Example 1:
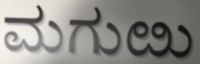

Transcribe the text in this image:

ಮಗುೞು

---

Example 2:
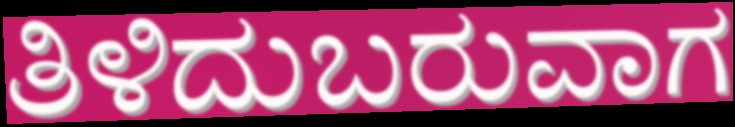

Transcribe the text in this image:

ತಿಳಿದುಬರುವಾಗ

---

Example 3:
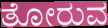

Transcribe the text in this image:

ತೋರುವ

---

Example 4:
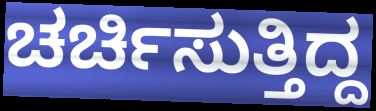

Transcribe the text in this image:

ಚರ್ಚಿಸುತ್ತಿದ್ದ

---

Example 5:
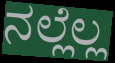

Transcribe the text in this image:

ನಲ್ಲೆಲ್ಲ